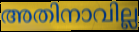
അതിനാവില്ല